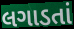
લગાડતાં